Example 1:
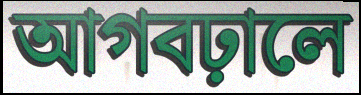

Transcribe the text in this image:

আগবঢ়ালে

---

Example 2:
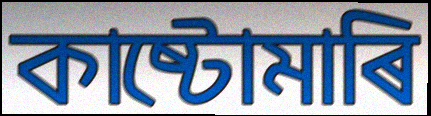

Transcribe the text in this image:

কাষ্টোমাৰি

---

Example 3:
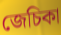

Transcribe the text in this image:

জেচিকা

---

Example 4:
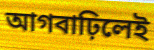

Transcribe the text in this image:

আগবাঢ়িলেই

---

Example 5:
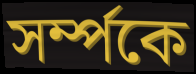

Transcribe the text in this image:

সৰ্ম্পকে